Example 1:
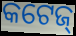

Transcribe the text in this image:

କଟେଜ୍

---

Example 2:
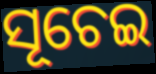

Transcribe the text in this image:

ସୂଚେଇ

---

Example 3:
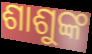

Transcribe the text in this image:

ଶାଶୁଙ୍କ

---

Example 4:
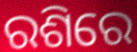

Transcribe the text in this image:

ରଶିରେ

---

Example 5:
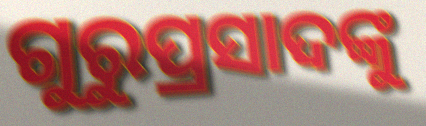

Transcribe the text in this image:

ଗୁରୁପ୍ରସାଦଙ୍କୁ